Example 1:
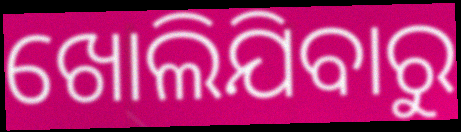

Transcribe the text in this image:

ଖୋଲିଯିବାରୁ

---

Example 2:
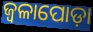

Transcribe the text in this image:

ଜ୍ୱଳାପୋଡ଼ା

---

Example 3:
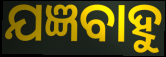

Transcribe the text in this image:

ଯଜ୍ଞବାହୁ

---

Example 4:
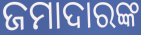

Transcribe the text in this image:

ଜମାଦାରଙ୍କ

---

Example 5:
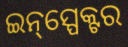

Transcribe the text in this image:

ଇନ୍‌ସ୍ପେକ୍ଟର